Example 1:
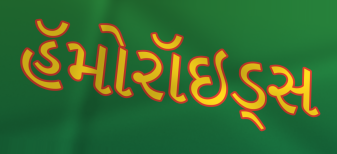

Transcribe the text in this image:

હૅમોરૉઇડ્સ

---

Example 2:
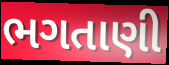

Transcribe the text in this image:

ભગતાણી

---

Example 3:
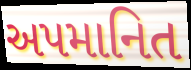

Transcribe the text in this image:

અપમાનિત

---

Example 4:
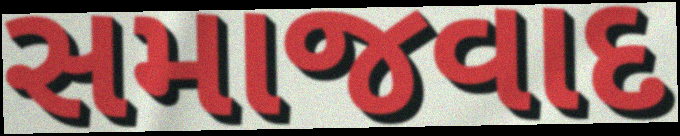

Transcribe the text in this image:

સમાજવાદ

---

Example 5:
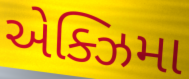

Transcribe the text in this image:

એક્ઝિમા